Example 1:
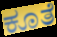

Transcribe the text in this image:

ಕೂತೆ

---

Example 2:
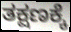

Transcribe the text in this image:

ತಕ್ಷಣಕ್ಕೆ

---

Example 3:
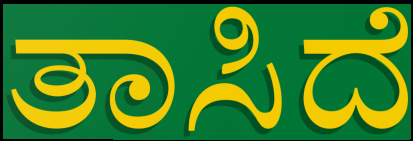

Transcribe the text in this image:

ತಾಸಿದೆ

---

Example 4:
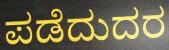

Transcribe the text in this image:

ಪಡೆದುದರ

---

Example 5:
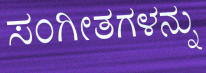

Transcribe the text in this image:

ಸಂಗೀತಗಳನ್ನು